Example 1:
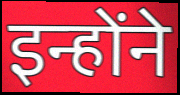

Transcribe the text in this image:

इन्‍होंने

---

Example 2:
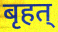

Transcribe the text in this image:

बृहत्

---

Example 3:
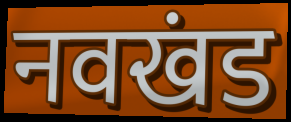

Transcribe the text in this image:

नवखंड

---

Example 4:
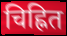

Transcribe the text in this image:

चिह्नित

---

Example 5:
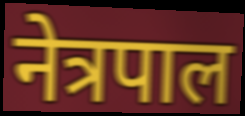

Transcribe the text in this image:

नेत्रपाल